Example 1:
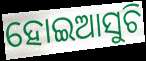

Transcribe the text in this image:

ହୋଇଆସୁଚି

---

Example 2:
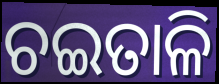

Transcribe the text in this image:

ଚଇତାଳି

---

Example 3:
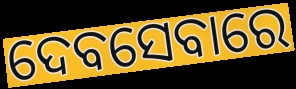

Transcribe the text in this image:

ଦେବସେବାରେ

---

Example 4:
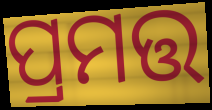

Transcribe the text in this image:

ପ୍ରମତ୍ତ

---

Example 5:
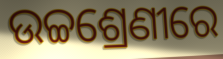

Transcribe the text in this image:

ଉଚ୍ଚଶ୍ରେଣୀରେ